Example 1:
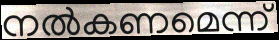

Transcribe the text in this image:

നൽകണമെന്ന്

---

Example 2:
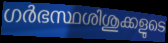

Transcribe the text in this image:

ഗർഭസ്ഥശിശുക്കളുടെ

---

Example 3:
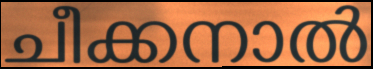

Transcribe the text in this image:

ചീക്കനാൽ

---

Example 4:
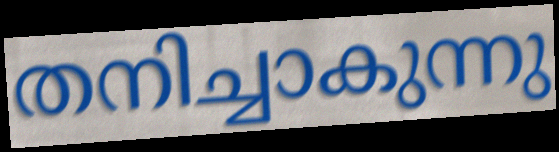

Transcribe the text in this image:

തനിച്ചാകുന്നു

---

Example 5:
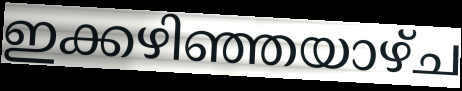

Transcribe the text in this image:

ഇക്കഴിഞ്ഞയാഴ്ച